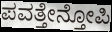
ಪವತ್ತೇನ್ತೋಪಿ